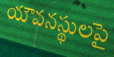
యౌవనస్థులపై